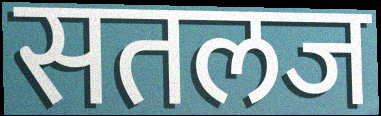
सतलज